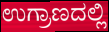
ಉಗ್ರಾಣದಲ್ಲಿ